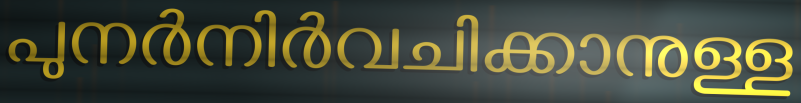
പുനർനിർവചിക്കാനുള്ള